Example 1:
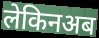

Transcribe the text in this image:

लेकिनअब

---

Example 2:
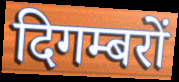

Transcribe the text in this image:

दिगम्बरों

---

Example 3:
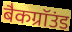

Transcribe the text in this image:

बैकग्रॉउंड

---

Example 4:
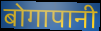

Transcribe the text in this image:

बोगापानी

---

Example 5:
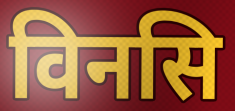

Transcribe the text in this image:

विनसि